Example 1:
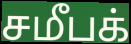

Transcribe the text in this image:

சமீபக்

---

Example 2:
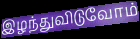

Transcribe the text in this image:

இழந்துவிடுவோம்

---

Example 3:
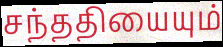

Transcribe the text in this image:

சந்ததியையும்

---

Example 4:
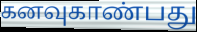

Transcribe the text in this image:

கனவுகாண்பது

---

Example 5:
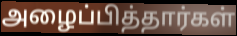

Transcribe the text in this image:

அழைப்பித்தார்கள்